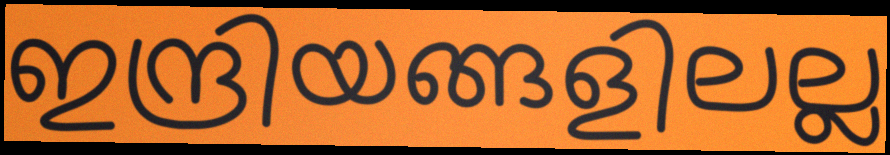
ഇന്ദ്രിയങ്ങളിലല്ല